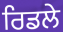
ਰਿਡਲੇ